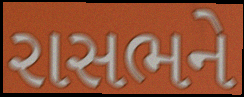
રાસભને